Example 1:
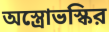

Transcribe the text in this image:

অস্ত্রোভস্কির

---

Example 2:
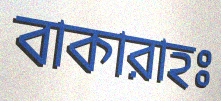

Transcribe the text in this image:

বাকারাহঃ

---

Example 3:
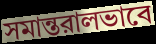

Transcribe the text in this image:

সমান্তরালভাবে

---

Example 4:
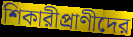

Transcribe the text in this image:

শিকারীপ্রাণীদের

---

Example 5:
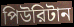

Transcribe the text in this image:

পিউরিটান